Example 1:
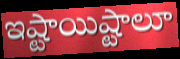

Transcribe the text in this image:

ఇష్టాయిష్టాలూ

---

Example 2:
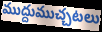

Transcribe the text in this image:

ముద్దుముచ్చటలు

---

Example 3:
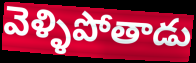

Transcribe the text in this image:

వెళ్ళిపోతాడు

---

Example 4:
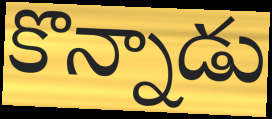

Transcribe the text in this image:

కొన్నాడు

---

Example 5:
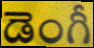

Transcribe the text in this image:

డెంగీ